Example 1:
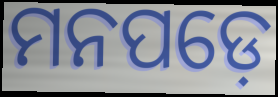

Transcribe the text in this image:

ମନପଡ଼େ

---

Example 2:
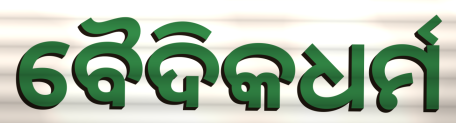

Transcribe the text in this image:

ବୈଦିକଧର୍ମ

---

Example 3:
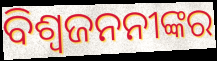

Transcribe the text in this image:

ବିଶ୍ୱଜନନୀଙ୍କର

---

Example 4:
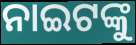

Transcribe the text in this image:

ନାଇଟଙ୍କୁ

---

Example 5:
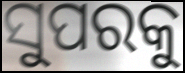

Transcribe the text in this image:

ସୁପରକୁ